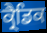
ਕ੍ਰੈਡਿਕ